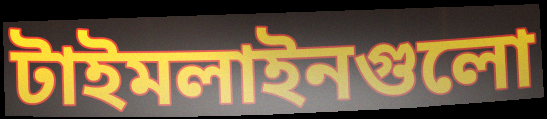
টাইমলাইনগুলো